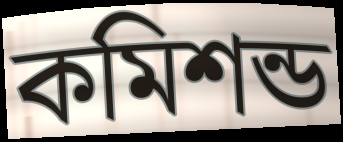
কমিশন্ড